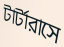
টার্টারাসে